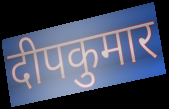
दीपकुमार